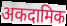
अकदामिक